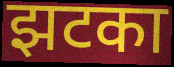
झटका